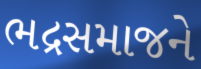
ભદ્રસમાજને